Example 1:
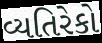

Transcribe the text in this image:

વ્યતિરેકો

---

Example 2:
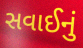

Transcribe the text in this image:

સવાઈનું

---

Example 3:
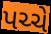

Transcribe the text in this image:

પચ્ચે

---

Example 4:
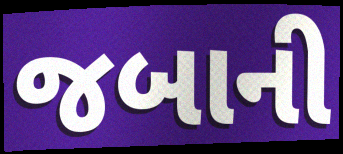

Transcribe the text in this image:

જબાની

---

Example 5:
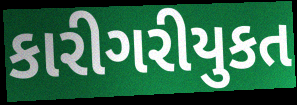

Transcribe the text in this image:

કારીગરીયુકત